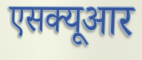
एसक्यूआर